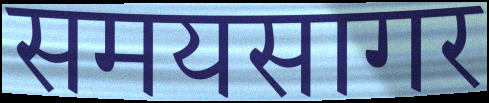
समयसागर